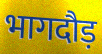
भागदौड़